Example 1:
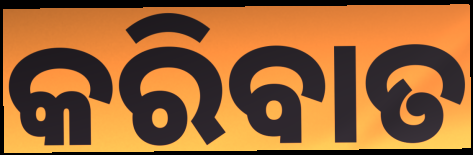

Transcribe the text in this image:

କରିବାତ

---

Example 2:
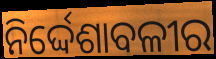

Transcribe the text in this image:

ନିର୍ଦ୍ଦେଶାବଳୀର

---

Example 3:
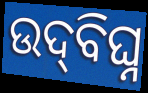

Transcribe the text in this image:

ଉଦ୍‍ବିଘ୍ନ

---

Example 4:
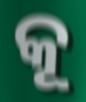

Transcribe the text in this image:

କୂ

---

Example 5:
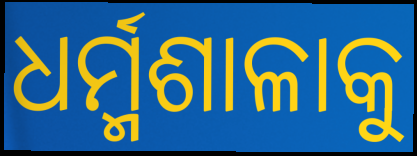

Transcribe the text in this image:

ଧର୍ମ୍ମଶାଳାକୁ